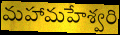
మహామహేశ్వరి